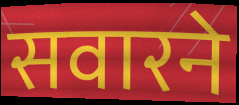
सवारने